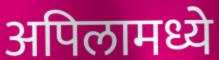
अपिलामध्ये